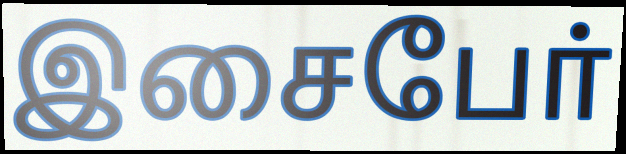
இசைபேர்